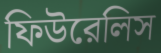
ফিউরেলিস